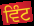
ਵਿੰਟ